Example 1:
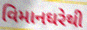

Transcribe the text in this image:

વિમાનઘરેથી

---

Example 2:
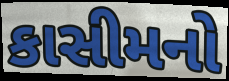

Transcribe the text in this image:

કાસીમનો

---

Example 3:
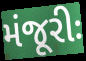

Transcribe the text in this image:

મંજૂરીઃ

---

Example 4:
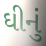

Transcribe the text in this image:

ઘીનું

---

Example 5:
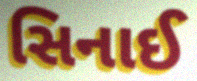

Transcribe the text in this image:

સિનાઈ